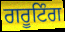
ਗਰੂਟਿੰਗ